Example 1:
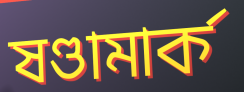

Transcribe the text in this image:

ষণ্ডামার্ক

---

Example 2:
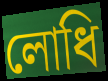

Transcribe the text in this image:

লোধি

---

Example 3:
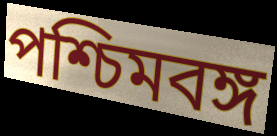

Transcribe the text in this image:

পশ্চিমবঙ্গ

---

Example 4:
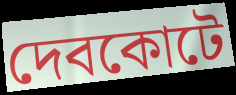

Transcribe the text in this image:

দেবকোটে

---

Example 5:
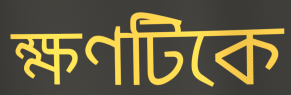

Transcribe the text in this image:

ক্ষণটিকে